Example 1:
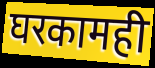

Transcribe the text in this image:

घरकामही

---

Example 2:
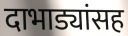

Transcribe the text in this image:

दाभाड्यांसह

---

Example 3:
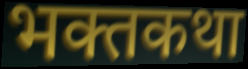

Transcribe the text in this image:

भक्तकथा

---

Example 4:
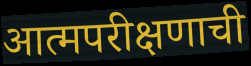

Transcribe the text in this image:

आत्मपरीक्षणाची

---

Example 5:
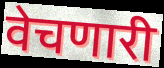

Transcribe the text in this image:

वेचणारी